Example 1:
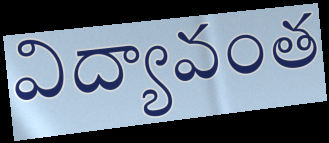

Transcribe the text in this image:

విద్యావంత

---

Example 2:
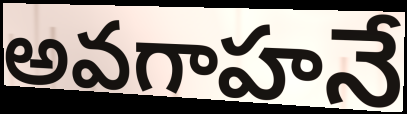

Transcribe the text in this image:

అవగాహనే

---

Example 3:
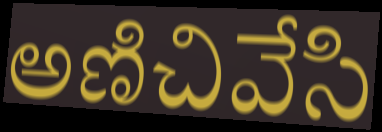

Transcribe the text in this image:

అణిచివేసి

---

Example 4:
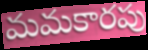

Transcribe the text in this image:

మమకారపు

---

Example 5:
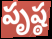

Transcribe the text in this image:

పృష్ఠ